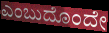
ಎಂಬುದೊಂದೇ